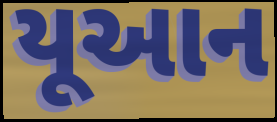
યૂઆન